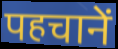
पहचानें